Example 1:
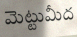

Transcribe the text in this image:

మెట్టుమీద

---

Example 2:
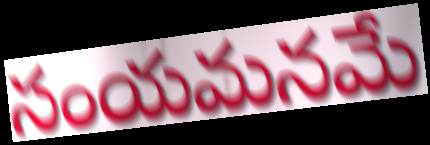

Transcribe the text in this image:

సంయమనమే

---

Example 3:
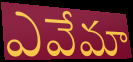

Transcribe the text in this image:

ఎవేమా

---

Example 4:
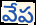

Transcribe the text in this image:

వేప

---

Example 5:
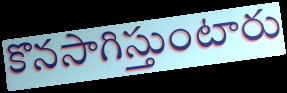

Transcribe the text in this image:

కొనసాగిస్తుంటారు